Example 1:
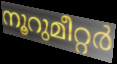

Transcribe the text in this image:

നൂറുമീറ്റർ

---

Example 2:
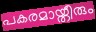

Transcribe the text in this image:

പകരമായ്തീരും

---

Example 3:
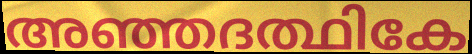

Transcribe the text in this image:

അഞ്ഞദത്ഥികേ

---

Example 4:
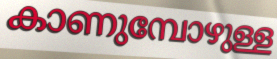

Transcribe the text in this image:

കാണുമ്പോഴുള്ള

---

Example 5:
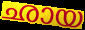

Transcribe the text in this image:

ഛായ